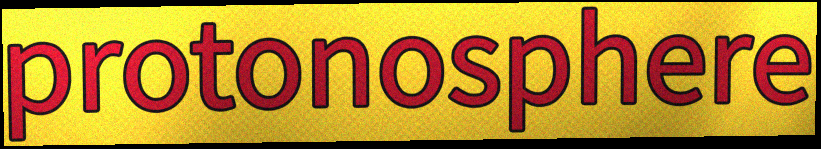
protonosphere